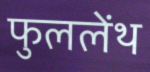
फुललेंथ